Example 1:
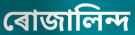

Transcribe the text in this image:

ৰোজালিন্দ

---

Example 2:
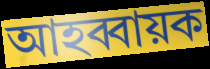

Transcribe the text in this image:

আহব্বায়ক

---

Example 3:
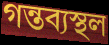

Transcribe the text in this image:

গন্তব্যস্থল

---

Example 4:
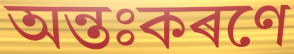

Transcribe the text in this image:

অন্তঃকৰণে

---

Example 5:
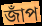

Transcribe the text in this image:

জাঁপ